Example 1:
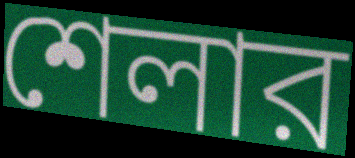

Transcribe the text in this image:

শেলার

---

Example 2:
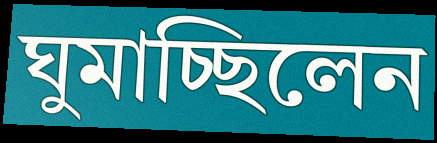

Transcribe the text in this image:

ঘুমাচ্ছিলেন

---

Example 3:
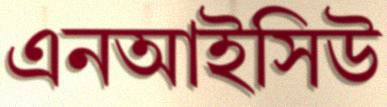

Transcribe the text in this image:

এনআইসিউ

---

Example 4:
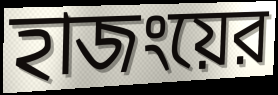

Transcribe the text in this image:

হাজংয়ের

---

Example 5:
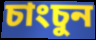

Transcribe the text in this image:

চাংচুন